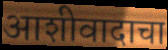
आशीवादाचा